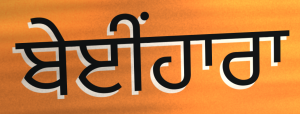
ਬੇਈਂਹਾਰਾ